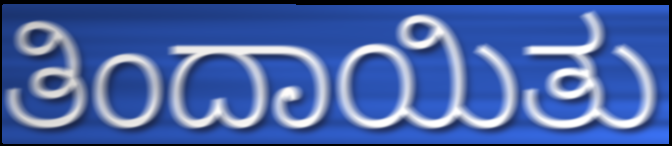
ತಿಂದಾಯಿತು